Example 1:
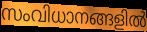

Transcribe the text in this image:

സംവിധാനങ്ങളിൽ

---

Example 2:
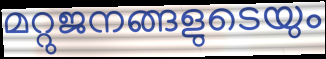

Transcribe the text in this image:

മറ്റുജനങ്ങളുടെയും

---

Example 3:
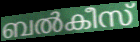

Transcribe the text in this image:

ബൽകീസ്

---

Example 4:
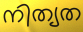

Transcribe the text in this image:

നിത്യത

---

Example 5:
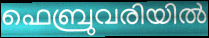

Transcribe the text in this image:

ഫെബ്രുവരിയിൽ